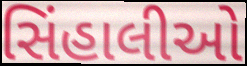
સિંહાલીઓ